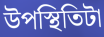
উপস্থিতিটা